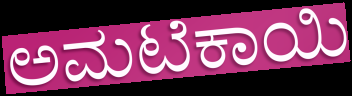
ಅಮಟೆಕಾಯಿ